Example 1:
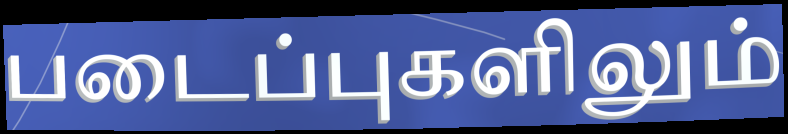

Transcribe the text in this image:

படைப்புகளிலும்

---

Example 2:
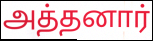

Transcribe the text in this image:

அத்தனார்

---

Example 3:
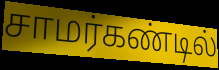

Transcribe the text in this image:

சாமர்கண்டில்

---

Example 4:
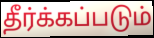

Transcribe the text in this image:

தீர்க்கப்படும்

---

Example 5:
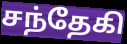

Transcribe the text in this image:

சந்தேகி